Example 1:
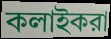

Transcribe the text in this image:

কলাইকরা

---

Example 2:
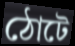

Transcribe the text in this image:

ঠোটে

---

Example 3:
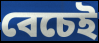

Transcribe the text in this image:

বেচেই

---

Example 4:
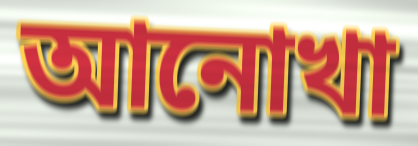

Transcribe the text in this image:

আনোখা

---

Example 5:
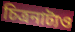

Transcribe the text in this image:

চিত্রনাট্যও